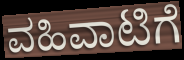
ವಹಿವಾಟಿಗೆ